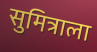
सुमित्राला